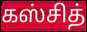
கஸ்சித்